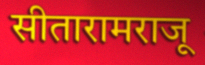
सीतारामराजू